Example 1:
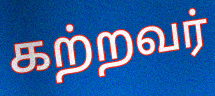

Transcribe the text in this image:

கற்றவர்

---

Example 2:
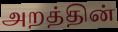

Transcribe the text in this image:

அறத்தின்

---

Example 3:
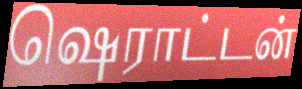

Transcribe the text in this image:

ஷெராட்டன்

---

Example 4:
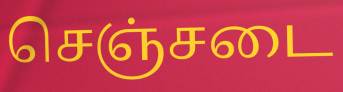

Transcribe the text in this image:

செஞ்சடை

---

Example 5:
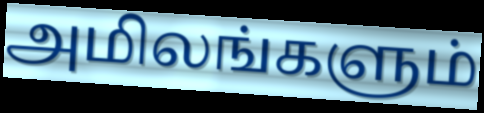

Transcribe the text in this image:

அமிலங்களும்